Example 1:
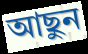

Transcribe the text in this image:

আছুন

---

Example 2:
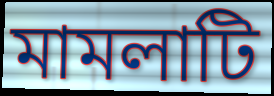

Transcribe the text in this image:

মামলাটি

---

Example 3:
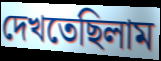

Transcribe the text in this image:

দেখতেছিলাম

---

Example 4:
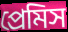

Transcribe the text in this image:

প্রেমিস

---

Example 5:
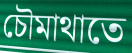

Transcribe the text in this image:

চৌমাথাতে